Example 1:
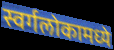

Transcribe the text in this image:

स्वर्गलोकामध्ये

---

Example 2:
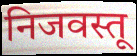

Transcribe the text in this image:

निजवस्तू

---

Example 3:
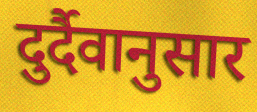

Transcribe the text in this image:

दुर्दैवानुसार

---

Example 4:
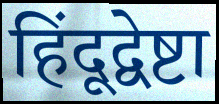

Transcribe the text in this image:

हिंदूद्वेष्टा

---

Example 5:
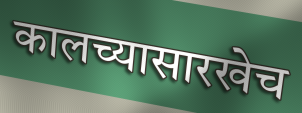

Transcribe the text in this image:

कालच्यासारखेच